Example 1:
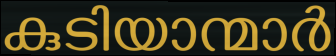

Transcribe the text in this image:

കുടിയാന്മാർ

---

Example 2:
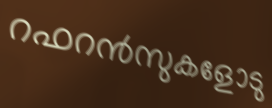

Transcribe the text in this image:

റഫറൻസുകളോടു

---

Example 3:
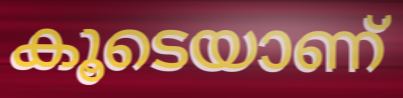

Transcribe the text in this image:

കൂടെയാണ്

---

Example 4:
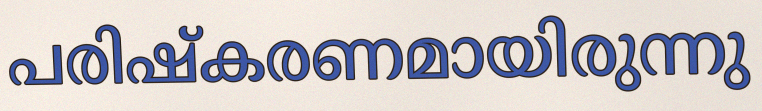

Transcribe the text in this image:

പരിഷ്കരണമായിരുന്നു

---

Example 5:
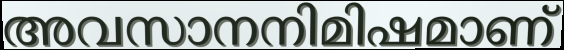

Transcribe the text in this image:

അവസാനനിമിഷമാണ്